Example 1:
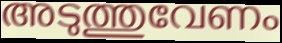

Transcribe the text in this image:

അടുത്തുവേണം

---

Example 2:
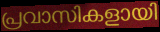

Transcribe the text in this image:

പ്രവാസികളായി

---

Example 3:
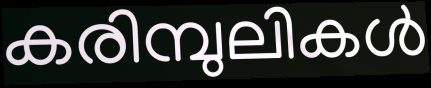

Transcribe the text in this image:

കരിമ്പുലികൾ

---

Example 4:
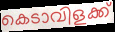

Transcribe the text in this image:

കെടാവിളക്ക്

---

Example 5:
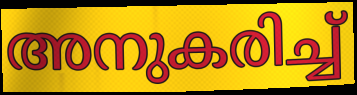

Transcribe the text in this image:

അനുകരിച്ച്